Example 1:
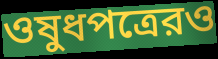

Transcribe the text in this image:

ওষুধপত্রেরও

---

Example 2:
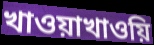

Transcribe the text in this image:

খাওয়াখাওয়ি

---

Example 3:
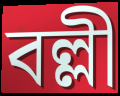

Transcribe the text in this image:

বল্লী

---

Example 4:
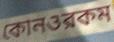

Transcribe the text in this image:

কোনওরকম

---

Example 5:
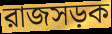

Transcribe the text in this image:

রাজসড়ক